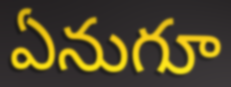
ఏనుగూ